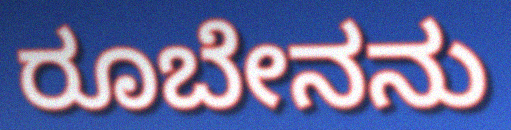
ರೂಬೇನನು